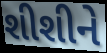
શીશીને